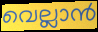
വെല്ലാൻ